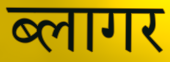
ब्लागर